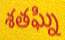
శతఘ్ని